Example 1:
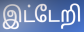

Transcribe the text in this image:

இட்டேறி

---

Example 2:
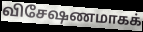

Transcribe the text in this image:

விசேஷணமாகக்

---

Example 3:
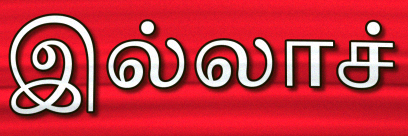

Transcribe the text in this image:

இல்லாச்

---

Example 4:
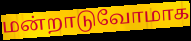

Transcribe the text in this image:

மன்றாடுவோமாக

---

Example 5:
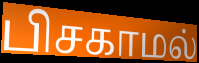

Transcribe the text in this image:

பிசகாமல்